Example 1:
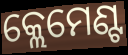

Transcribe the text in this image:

କ୍ଲେମେଣ୍ଟ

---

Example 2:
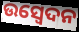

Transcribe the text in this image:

ଉସ୍ୱେଦନ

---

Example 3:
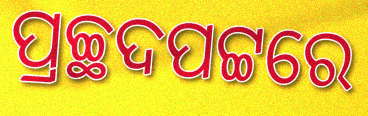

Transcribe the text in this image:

ପ୍ରଚ୍ଛଦପଟ୍ଟରେ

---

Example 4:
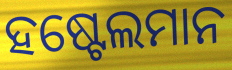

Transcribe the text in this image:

ହଷ୍ଟେଲମାନ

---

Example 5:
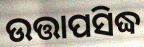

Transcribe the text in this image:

ଉତ୍ତାପସିଦ୍ଧ